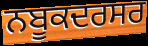
ਨਬੂਕਦਰਸਰ